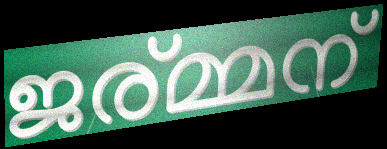
ജര്മ്മന്